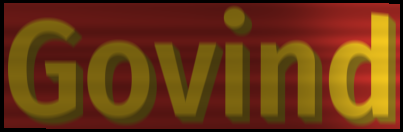
Govind